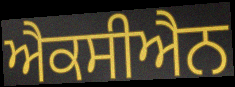
ਐਕਸੀਐਨ